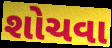
શોચવા